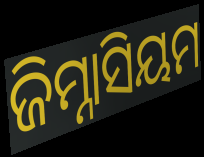
ଜିମ୍ନାସିୟମ